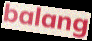
balang